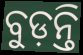
ବୁଡ଼ନ୍ତି